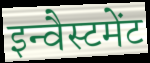
इन्वैस्टमेंट